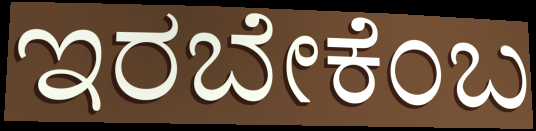
ಇರಬೇಕೆಂಬ